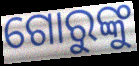
ଗୋରୁଙ୍କୁ